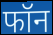
फॉन